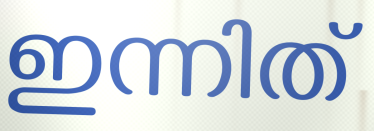
ഇന്നിത്